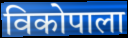
विकोपाला